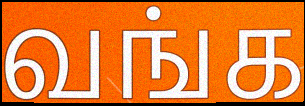
வங்க